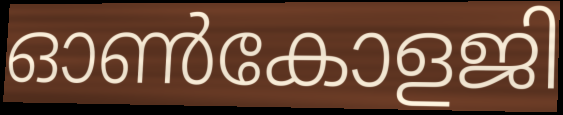
ഓൺകോളജി